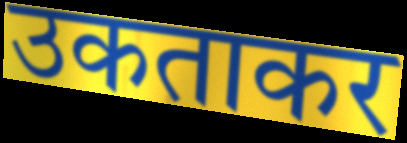
उकताकर